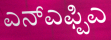
ಎನ್ಎಫ್ಪಿಎ